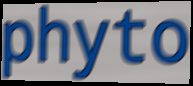
phyto